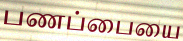
பணப்பையை